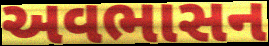
અવભાસન